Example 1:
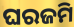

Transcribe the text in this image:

ଘରଜମି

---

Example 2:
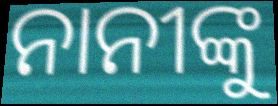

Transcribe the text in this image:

ନାନୀଙ୍କୁ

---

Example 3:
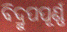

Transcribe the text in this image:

ବିଦ୍ରୁପପୂର୍ଣ୍ଣ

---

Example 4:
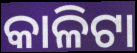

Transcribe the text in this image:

କାଳିଟା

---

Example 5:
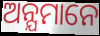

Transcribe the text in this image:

ଅନ୍ଯମାନେ